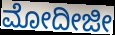
ಮೋದೀಜೀ